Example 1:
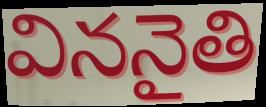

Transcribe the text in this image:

విననైతి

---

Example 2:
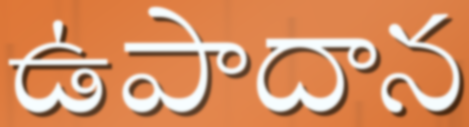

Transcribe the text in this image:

ఉపాదాన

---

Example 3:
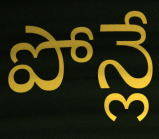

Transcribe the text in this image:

పోన్లే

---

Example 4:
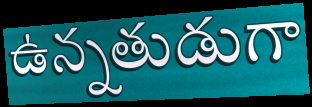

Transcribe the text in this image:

ఉన్నతుడుగా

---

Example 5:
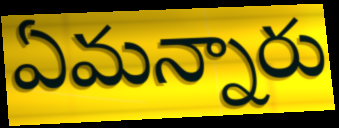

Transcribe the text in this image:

ఏమన్నారు